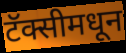
टॅक्सीमधून